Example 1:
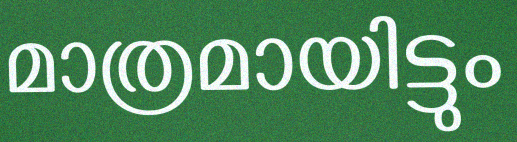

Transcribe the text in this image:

മാത്രമായിട്ടും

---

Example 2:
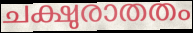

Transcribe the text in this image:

ചക്ഷുരാതതം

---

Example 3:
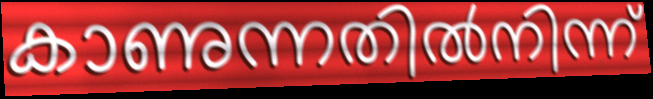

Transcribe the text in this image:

കാണുന്നതിൽനിന്ന്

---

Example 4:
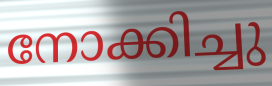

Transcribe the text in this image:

നോക്കിച്ചു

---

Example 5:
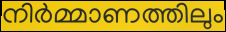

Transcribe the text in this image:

നിർമ്മാണത്തിലും